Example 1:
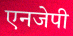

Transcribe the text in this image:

एनजेपी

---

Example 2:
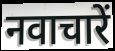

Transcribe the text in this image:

नवाचारें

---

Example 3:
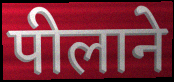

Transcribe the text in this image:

पीलाने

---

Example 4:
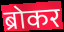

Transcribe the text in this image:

ब्रोकर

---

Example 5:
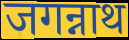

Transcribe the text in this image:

जगन्नाथ